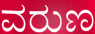
ವರುಣ